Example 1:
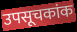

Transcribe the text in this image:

उपसूचकांक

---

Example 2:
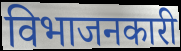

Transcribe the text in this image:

विभाजनकारी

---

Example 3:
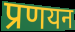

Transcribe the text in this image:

प्रणयन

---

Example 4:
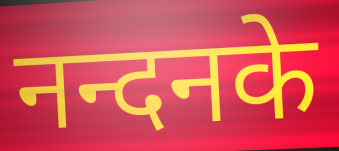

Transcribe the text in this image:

नन्दनके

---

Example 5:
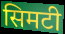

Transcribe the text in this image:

सिमटी